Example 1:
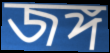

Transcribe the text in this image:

জঙ্গ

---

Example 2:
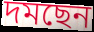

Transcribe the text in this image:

দমছেন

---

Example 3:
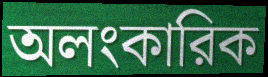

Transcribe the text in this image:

অলংকারিক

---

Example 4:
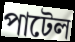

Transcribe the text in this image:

পাটেল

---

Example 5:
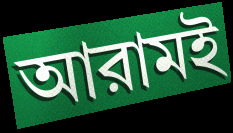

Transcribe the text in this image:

আরামই